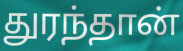
துரந்தான்